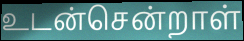
உடன்சென்றாள்